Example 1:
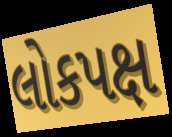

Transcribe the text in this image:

લોકપક્ષ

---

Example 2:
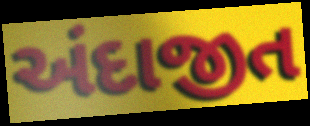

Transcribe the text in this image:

અંદાજીત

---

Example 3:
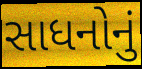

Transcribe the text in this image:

સાધનોનું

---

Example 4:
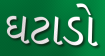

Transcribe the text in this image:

ઘટાડો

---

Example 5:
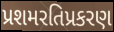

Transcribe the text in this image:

પ્રશમરતિપ્રકરણ